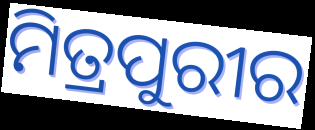
ମିତ୍ରପୁରୀର